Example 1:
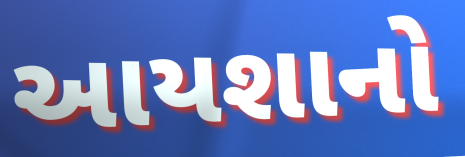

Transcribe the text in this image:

આયશાનો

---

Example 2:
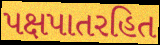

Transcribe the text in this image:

પક્ષપાતરહિત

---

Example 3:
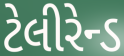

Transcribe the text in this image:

ટેલીરેન્ડ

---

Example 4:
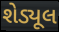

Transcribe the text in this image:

શેડ્યૂલ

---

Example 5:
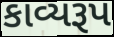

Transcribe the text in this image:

કાવ્યરૂપ